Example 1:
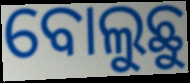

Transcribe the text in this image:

ବୋଲୁଛୁ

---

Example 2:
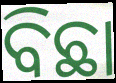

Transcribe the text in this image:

ବିଛା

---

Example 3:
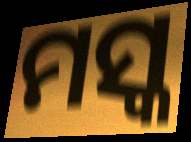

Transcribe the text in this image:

ମସ୍କ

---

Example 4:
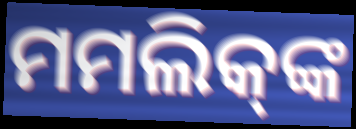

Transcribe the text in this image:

ମମଲିକ୍‌ଙ୍କ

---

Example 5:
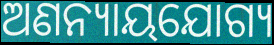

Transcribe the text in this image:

ଅଣନ୍ୟାୟଯୋଗ୍ୟ